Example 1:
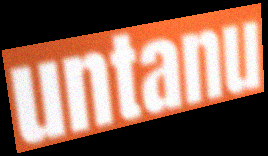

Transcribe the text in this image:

untanu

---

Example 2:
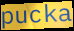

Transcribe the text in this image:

pucka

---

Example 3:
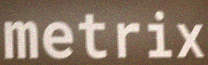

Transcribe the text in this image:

metrix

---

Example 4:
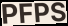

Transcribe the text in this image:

PFPS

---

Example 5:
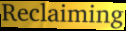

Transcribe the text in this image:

Reclaiming